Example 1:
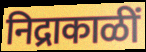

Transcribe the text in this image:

निद्राकाळीं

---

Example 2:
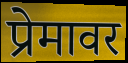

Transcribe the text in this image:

प्रेमावर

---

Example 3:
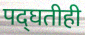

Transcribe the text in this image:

पद्घतीही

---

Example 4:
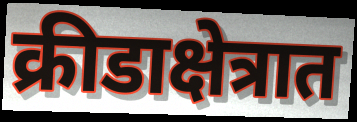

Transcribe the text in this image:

क्रीडाक्षेत्रात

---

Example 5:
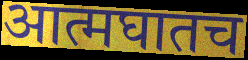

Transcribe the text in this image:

आत्मघातच